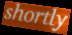
shortly